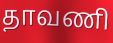
தாவணி